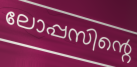
ലോപ്പസിന്റെ